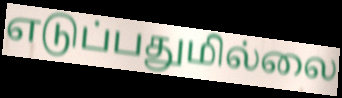
எடுப்பதுமில்லை